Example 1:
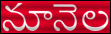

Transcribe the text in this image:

నూనెల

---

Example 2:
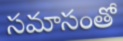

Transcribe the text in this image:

సమాసంతో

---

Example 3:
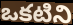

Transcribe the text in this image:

ఒకటిని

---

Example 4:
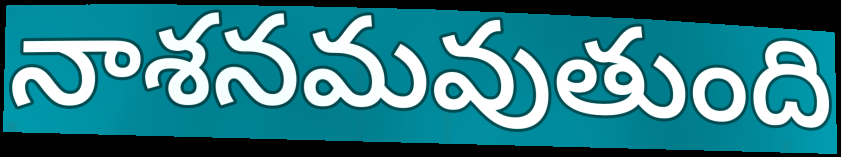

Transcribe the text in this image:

నాశనమవుతుంది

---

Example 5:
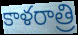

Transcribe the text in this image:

కాళరాత్రి